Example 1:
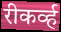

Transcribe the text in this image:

रीकर्व्ह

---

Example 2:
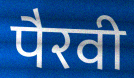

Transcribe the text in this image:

पैरवी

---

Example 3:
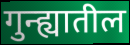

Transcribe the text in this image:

गुन्ह्यातील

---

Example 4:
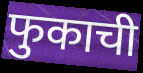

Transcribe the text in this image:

फुकाची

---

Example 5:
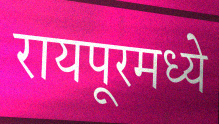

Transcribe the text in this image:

रायपूरमध्ये